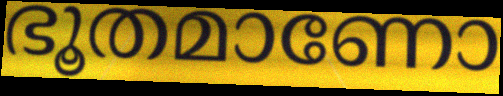
ഭൂതമാണോ